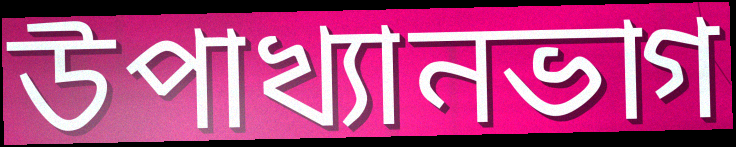
উপাখ্যানভাগ